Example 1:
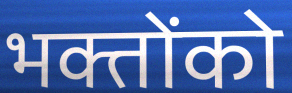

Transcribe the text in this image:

भक्तोंको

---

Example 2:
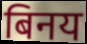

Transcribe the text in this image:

बिनय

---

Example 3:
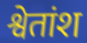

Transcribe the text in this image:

श्वेतांश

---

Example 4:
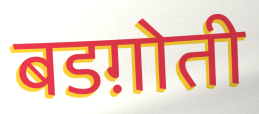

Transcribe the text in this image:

बडग़ोती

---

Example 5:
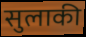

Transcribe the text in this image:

सुलाकी